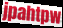
jpahtpw